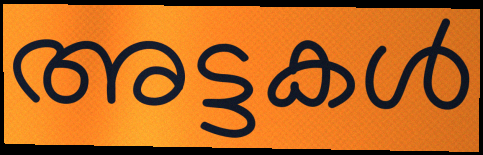
അട്ടകൾ